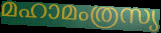
മഹാമംത്രസ്യ